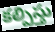
కల్పిస్తు